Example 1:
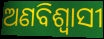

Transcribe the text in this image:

ଅଣବିଶ୍ୱାସୀ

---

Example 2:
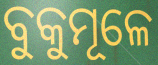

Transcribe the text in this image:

ବୁକୁମୂଳେ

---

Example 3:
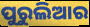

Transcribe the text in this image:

ପୁରୁଲିଆର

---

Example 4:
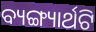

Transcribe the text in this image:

ବ୍ୟଙ୍ଗ୍ୟାର୍ଥଟି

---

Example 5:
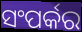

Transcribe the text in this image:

ସଂପର୍କର